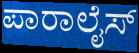
ಪಾರಾಲೈಸ್